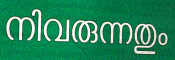
നിവരുന്നതും